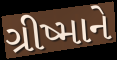
ગ્રીષ્માને